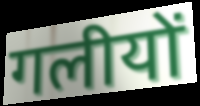
गलीयों